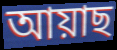
আয়াছ